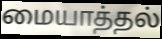
மையாத்தல்